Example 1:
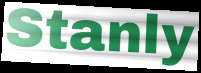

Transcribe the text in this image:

Stanly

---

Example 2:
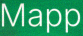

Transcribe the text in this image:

Mapp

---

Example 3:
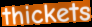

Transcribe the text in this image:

thickets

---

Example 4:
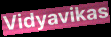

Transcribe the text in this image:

Vidyavikas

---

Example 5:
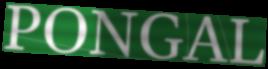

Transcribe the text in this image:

PONGAL